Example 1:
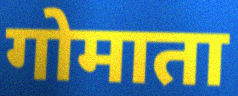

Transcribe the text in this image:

गोमाता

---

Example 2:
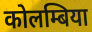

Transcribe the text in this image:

कोलम्बिया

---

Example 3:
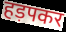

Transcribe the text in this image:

हड़पकर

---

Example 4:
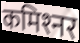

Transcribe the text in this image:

कमिश्‍नर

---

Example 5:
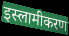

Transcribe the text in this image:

इस्लामीकरण